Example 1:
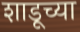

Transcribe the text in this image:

शाडूच्या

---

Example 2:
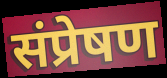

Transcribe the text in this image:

संप्रेषण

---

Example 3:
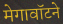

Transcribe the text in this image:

मेगावॉटने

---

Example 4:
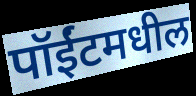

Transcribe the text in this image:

पॉईंटमधील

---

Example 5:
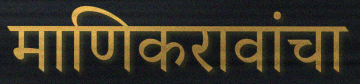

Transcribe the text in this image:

माणिकरावांचा